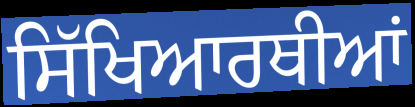
ਸਿੱਖਿਆਰਥੀਆਂ